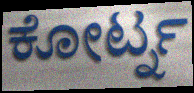
ಕೋರ್ಟ್ನ